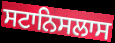
ਸਟਾਨਿਸਲਾਸ